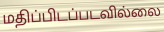
மதிப்பிடப்படவில்லை